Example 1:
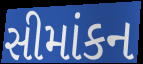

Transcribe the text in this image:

સીમાંકન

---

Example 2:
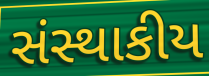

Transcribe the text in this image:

સંસ્થાકીય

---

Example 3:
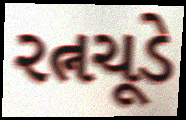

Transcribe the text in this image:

રત્નચૂડે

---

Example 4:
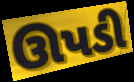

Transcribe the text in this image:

ઊપડી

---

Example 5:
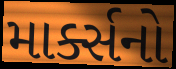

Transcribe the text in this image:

માર્ક્સનો